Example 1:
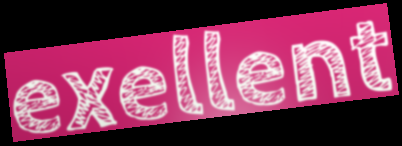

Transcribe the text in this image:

exellent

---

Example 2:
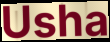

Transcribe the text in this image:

Usha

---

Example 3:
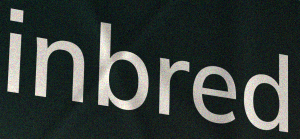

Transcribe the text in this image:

inbred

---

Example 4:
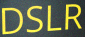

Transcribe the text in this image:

DSLR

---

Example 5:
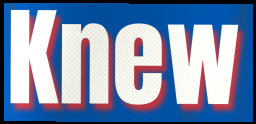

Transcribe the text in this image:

Knew